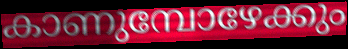
കാണുമ്പോഴേക്കും